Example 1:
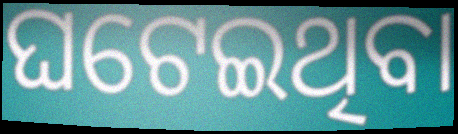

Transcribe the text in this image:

ଘଟେଇଥିବା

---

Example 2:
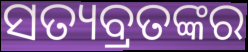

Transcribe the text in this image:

ସତ୍ୟବ୍ରତଙ୍କର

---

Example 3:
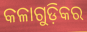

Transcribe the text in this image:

କଳାଗୁଡ଼ିକର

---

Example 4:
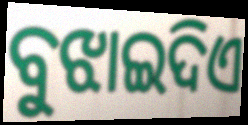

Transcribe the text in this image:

ବୁଝାଇଦିଏ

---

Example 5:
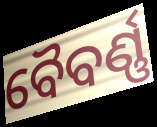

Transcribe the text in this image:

ବୈବର୍ଣ୍ଣ